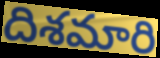
దిశమారి